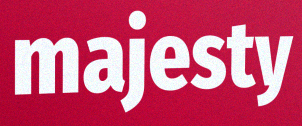
majesty